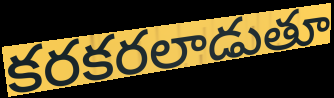
కరకరలాడుతూ